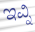
ಇವ್ನಿ